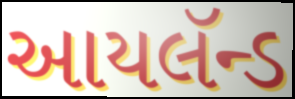
આયલૅન્ડ